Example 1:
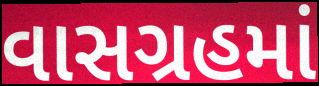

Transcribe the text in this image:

વાસગ્રહમાં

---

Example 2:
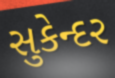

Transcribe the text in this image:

સુકેન્દર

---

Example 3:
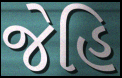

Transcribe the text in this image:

જેહિ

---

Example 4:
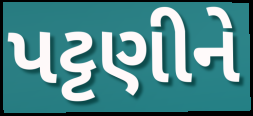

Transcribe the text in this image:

પટ્ટણીને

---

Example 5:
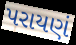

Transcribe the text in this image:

પરાયણં